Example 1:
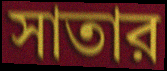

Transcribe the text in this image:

সাতার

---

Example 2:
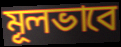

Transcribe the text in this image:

মূলভাবে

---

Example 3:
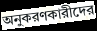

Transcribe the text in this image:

অনুকরণকারীদের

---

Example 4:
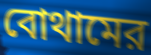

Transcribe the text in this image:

বোথামের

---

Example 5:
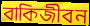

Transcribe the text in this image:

বাকিজীবন